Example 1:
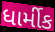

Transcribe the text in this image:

ધાર્મીક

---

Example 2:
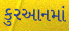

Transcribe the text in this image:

કુરઆનમાં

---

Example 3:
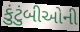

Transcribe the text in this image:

કુંટુંબીઓની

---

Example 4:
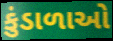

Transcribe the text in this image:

કુંડાળાઓ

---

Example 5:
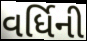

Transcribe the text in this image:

વર્ધિની